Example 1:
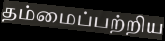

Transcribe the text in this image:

தம்மைப்பற்றிய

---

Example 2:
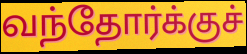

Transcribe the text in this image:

வந்தோர்க்குச்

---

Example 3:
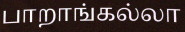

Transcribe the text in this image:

பாறாங்கல்லா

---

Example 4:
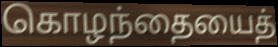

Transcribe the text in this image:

கொழந்தையைத்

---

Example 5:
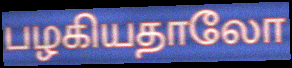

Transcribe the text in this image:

பழகியதாலோ